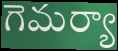
గెమర్యా